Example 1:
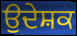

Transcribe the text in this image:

ਉਦੇਸ਼ਕ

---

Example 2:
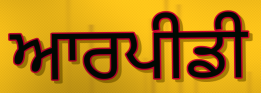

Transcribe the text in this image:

ਆਰਪੀਡੀ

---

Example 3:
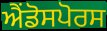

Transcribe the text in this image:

ਐਂਡੋਸਪੋਰਸ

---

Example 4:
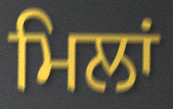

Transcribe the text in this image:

ਮਿਲਾਂ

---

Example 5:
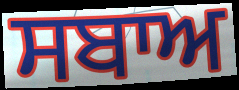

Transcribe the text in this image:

ਸਬਾਅ